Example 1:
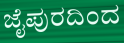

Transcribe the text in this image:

ಜೈಪುರದಿಂದ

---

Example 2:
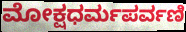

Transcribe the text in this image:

ಮೋಕ್ಷಧರ್ಮಪರ್ವಣಿ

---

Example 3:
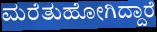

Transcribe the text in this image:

ಮರೆತುಹೋಗಿದ್ದಾರೆ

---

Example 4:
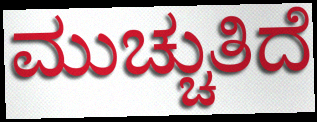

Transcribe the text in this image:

ಮುಚ್ಚುತಿದೆ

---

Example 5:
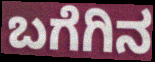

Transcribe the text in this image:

ಬಗೆಗಿನ